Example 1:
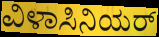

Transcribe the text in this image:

ವಿಳಾಸಿನಿಯರ್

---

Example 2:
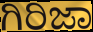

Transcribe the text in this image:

ಗಿರಿಜಾ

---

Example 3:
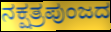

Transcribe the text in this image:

ನಕ್ಷತ್ರಪುಂಜದ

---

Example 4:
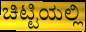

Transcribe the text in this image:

ಚಿಟ್ಟಿಯಲ್ಲಿ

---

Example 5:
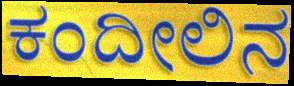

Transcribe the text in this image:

ಕಂದೀಲಿನ